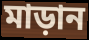
মাড়ান